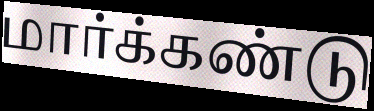
மார்க்கண்டு